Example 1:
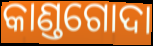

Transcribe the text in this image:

କାଣ୍ଡଗୋଦା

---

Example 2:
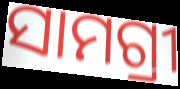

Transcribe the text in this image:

ସାମଗ୍ରୀ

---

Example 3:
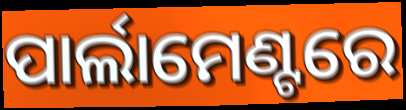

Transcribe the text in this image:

ପାର୍ଲାମେଣ୍ଟରେ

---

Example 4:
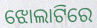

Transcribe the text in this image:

ଝୋଲାଟିରେ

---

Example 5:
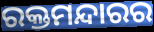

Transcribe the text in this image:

ରକ୍ତମନ୍ଦାରର